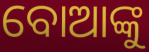
ବୋଆଙ୍କୁ